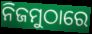
ନିଜମୁଠାରେ